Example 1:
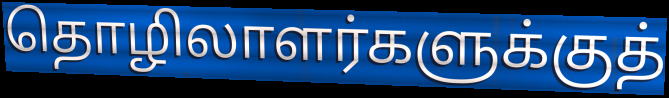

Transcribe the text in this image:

தொழிலாளர்களுக்குத்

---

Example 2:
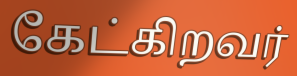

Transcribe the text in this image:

கேட்கிறவர்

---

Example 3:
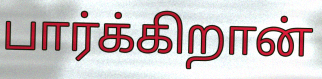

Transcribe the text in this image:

பார்க்கிறான்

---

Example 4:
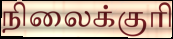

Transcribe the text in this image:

நிலைக்குரி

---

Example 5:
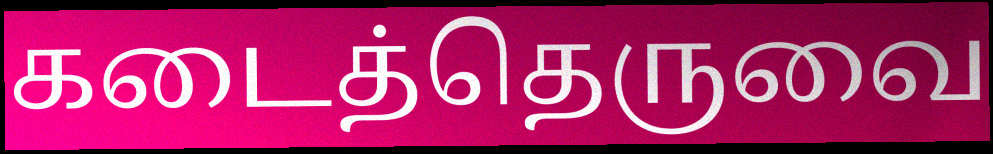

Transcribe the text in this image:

கடைத்தெருவை